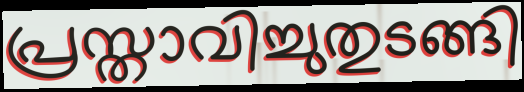
പ്രസ്താവിച്ചുതുടങ്ങി